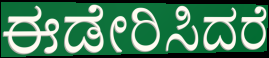
ಈಡೇರಿಸಿದರೆ